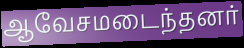
ஆவேசமடைந்தனர்